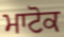
ਮਾਟੋਕ